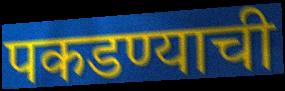
पकडण्याची